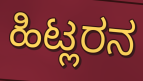
ಹಿಟ್ಲರನ